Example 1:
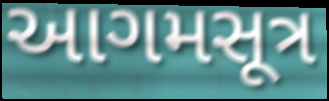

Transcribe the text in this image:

આગમસૂત્ર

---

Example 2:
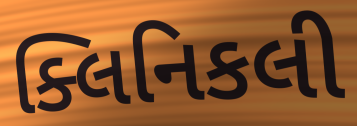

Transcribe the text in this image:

ક્લિનિકલી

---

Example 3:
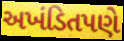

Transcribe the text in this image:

અખંડિતપણે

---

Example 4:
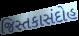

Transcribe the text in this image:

જિસ્તકાસંદોહ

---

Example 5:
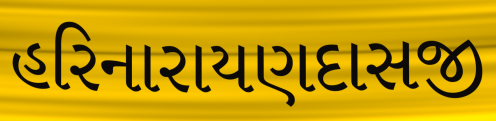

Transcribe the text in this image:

હરિનારાયણદાસજી